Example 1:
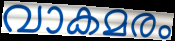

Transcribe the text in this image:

വാകമരം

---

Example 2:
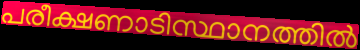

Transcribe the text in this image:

പരീക്ഷണാടിസ്ഥാനത്തിൽ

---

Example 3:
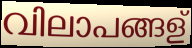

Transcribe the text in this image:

വിലാപങ്ങള്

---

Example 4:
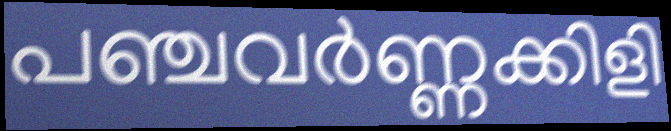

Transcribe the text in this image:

പഞ്ചവർണ്ണക്കിളി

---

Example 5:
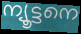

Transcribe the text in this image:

ന്യൂട്ടനെ